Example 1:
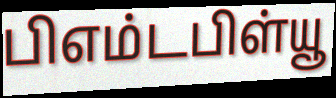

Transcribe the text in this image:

பிஎம்டபிள்யூ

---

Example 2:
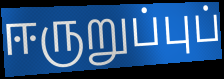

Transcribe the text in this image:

ஈருறுப்புப்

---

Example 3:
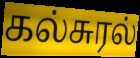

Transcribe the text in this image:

கல்சுரல்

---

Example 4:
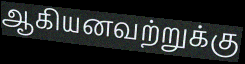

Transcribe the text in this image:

ஆகியனவற்றுக்கு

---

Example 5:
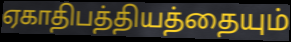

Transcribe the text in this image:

ஏகாதிபத்தியத்தையும்